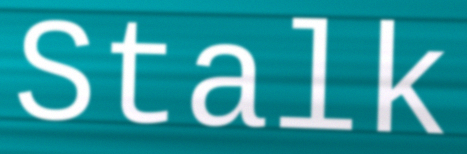
Stalk